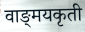
वाङ्‌मयकृती